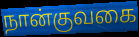
நான்குவகை